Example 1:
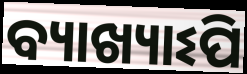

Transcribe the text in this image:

ବ୍ୟାଖ୍ୟାଽପି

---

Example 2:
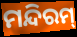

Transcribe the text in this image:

ମନ୍ଦିରମ୍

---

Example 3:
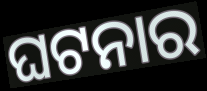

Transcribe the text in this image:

ଘଟନାର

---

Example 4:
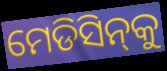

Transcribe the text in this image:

ମେଡିସିନ୍‌କୁ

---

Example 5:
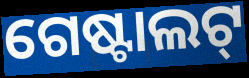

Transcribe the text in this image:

ଗେଷ୍ଟାଲଟ୍